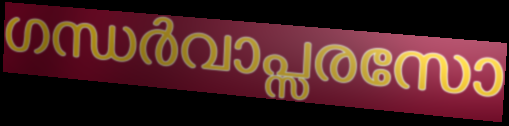
ഗന്ധർവാപ്സരസോ